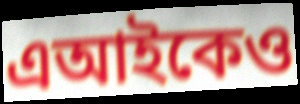
এআইকেও